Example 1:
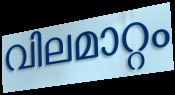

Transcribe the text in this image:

വിലമാറ്റം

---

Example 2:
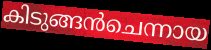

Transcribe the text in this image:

കിടുങ്ങൻചെന്നായ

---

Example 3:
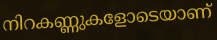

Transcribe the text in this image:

നിറകണ്ണുകളോടെയാണ്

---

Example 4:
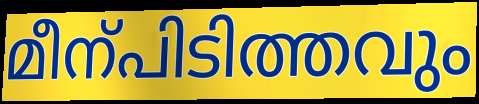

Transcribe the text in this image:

മീന്പിടിത്തവും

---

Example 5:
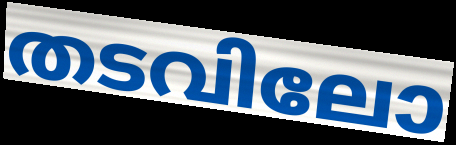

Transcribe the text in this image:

തടവിലോ